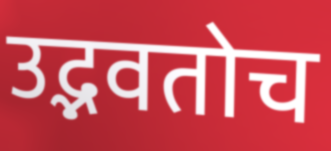
उद्भवतोच